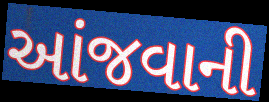
આંજવાની